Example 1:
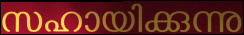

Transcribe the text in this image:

സഹായിക്കുന്നു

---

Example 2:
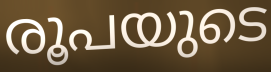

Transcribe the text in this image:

രൂപയുടെ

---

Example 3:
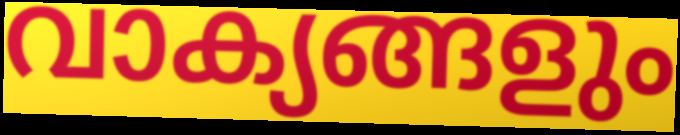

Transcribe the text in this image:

വാക്യങ്ങളും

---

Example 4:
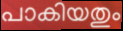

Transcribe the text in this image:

പാകിയതും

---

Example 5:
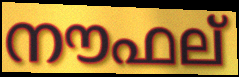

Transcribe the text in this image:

നൗഫല്